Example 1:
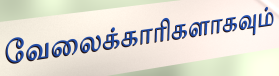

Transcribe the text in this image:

வேலைக்காரிகளாகவும்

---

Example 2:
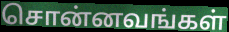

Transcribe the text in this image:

சொன்னவங்கள்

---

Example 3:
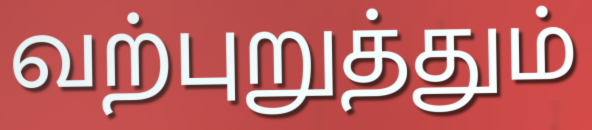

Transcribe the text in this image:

வற்புறுத்தும்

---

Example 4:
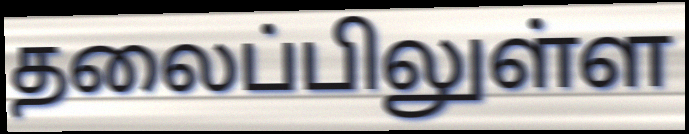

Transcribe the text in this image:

தலைப்பிலுள்ள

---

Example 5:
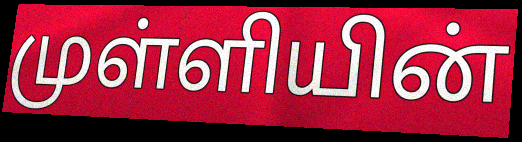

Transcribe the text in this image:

முள்ளியின்